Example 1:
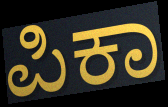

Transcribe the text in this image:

ಪಿಕಾ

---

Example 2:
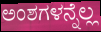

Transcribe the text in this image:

ಅಂಶಗಳನ್ನೆಲ್ಲ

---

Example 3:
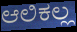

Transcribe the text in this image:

ಆಲಿಕಲ್ಲ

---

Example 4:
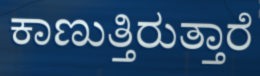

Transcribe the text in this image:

ಕಾಣುತ್ತಿರುತ್ತಾರೆ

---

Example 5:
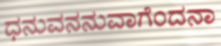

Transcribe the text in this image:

ಧನುವನನುವಾಗೆಂದನಾ